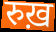
रुख़